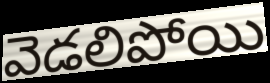
వెడలిపోయి